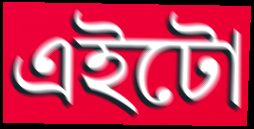
এইটো